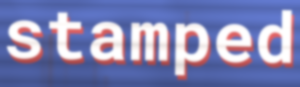
stamped